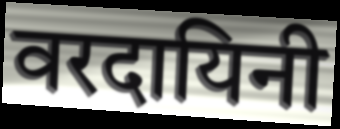
वरदायिनी